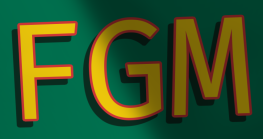
FGM